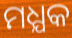
ମଧ୍ଯକ